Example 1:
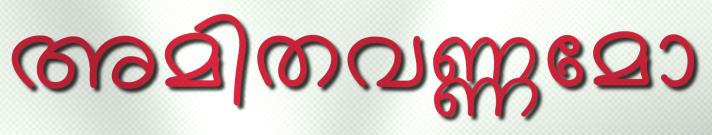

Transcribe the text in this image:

അമിതവണ്ണമോ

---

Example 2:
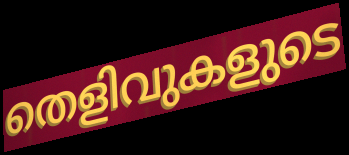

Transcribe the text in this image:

തെളിവുകളുടെ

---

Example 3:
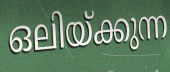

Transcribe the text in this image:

ഒലിയ്ക്കുന്ന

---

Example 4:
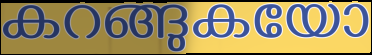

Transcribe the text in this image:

കറങ്ങുകയോ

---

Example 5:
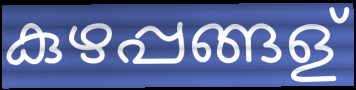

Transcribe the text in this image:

കുഴപ്പങ്ങള്